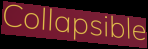
Collapsible